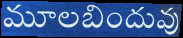
మూలబిందువు